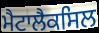
ਮੈਟਾਲੈਕਸਿਲ